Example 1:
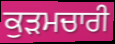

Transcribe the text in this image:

ਕੁੜਮਚਾਰੀ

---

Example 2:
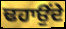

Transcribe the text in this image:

ਢਹਾਉਂਦੇ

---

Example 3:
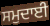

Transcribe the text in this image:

ਸਮੁਦਾਈ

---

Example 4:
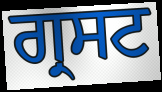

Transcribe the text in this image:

ਗ੍ਰਸਟ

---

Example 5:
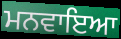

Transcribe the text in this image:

ਮਨਵਾਇਆ